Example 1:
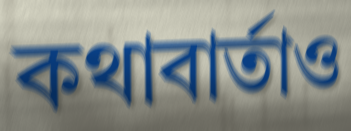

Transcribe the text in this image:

কথাবার্তাও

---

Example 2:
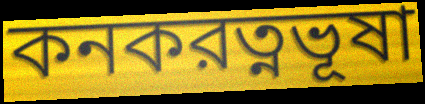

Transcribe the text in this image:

কনকরত্নভূষা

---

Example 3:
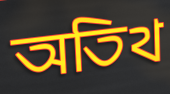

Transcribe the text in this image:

অতিথ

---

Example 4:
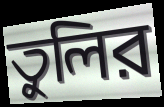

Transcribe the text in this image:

তুলির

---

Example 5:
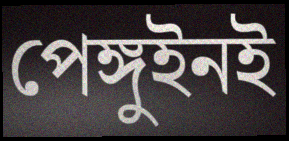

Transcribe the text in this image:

পেঙ্গুইনই